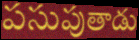
పసుపుతాడు